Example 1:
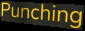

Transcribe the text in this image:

Punching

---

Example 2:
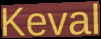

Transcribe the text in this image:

Keval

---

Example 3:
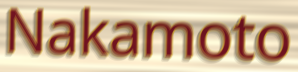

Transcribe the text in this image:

Nakamoto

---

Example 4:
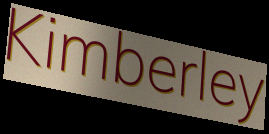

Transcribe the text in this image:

Kimberley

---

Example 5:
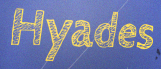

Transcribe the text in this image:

Hyades